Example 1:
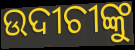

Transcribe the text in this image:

ଉଦୀଚୀଙ୍କୁ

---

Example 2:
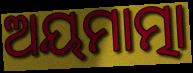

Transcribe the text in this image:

ଅୟମାତ୍ମା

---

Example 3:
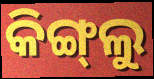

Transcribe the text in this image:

କିଙ୍ଗ୍‌ଲୁ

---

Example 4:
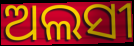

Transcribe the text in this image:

ଅଲସୀ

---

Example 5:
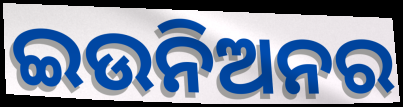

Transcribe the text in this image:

ଇଉନିଅନର